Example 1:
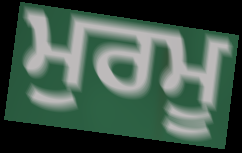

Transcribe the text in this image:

ਮੁਰਮੂ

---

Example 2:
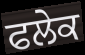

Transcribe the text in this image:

ਫਲੇਕ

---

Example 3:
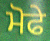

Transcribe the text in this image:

ਮੋਫੇ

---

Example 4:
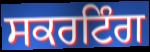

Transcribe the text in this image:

ਸਕਰਟਿੰਗ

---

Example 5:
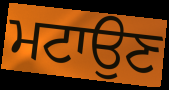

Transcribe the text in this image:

ਮਟਾਉਣ